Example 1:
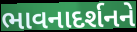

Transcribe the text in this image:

ભાવનાદર્શનને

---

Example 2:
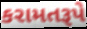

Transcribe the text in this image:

કરામતરૂપે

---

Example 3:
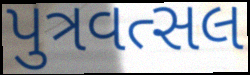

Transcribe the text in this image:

પુત્રવત્સલ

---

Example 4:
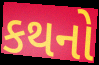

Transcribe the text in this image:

કથનો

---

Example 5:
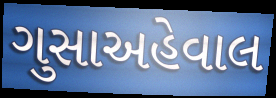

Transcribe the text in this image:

ગુસાઅહેવાલ